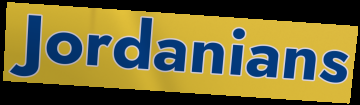
Jordanians